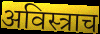
अविस्त्राच